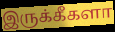
இருக்கீகளா